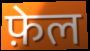
फ़ेल